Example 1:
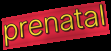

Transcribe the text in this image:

prenatal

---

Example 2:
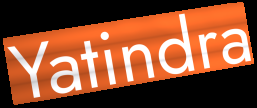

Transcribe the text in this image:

Yatindra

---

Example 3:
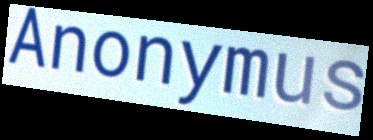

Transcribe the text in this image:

Anonymus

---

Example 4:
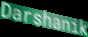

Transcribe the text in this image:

Darshanik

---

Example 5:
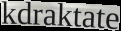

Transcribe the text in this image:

kdraktate